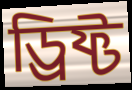
ড্রিফ্ট